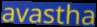
avastha